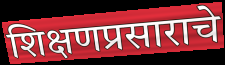
शिक्षणप्रसाराचे